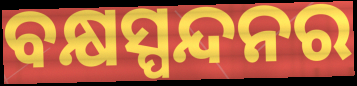
ବକ୍ଷସ୍ପନ୍ଦନର